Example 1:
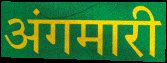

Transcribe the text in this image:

अंगमारी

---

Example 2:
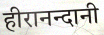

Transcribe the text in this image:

हीरानन्दानी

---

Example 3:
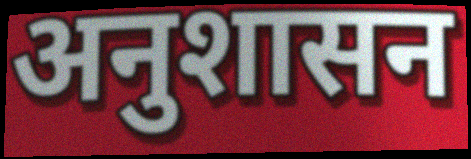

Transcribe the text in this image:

अनुशासन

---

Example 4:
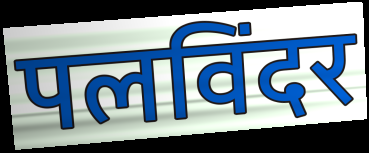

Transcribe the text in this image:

पलविंदर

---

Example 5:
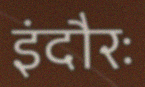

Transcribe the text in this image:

इंदौरः